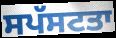
ਸਪੱਸਟਤਾ